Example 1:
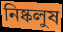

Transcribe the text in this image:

নিষ্কলুষ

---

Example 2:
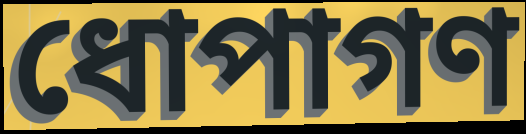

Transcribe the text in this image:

ধোপাগণ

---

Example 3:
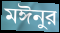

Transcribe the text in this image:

মঈনুর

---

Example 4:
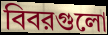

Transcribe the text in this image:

বিবরগুলো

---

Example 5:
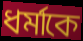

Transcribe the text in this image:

ধর্মাকে